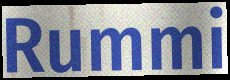
Rummi